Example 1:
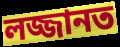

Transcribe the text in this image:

লজ্জানত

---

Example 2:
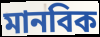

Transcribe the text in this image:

মানবিক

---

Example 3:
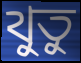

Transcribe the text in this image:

থুতু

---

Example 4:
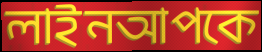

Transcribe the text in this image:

লাইনআপকে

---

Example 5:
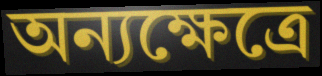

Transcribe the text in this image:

অন্যক্ষেত্রে